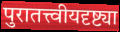
पुरातत्त्वीयदृष्ट्या